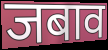
जबाव